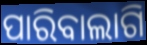
ପାରିବାଲାଗି